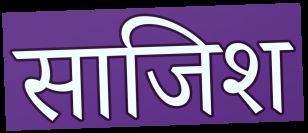
साजिश